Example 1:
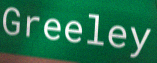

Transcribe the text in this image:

Greeley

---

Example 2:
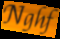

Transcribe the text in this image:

Nghf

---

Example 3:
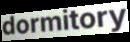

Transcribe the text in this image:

dormitory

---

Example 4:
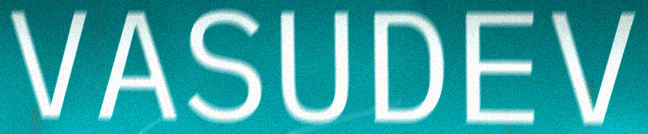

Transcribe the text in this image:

VASUDEV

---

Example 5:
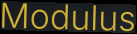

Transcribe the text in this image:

Modulus